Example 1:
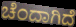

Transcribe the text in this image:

ಚೆಂದಾಗಿದೆ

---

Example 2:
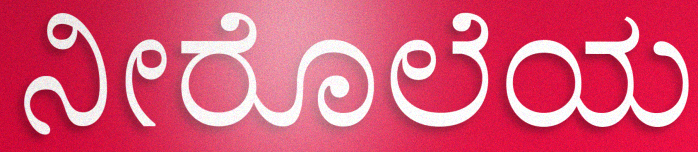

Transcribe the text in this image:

ನೀರೊಲೆಯ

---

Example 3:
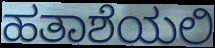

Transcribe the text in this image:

ಹತಾಶೆಯಲಿ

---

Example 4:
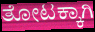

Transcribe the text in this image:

ತೋಟಕ್ಕಾಗಿ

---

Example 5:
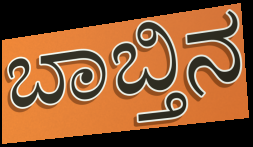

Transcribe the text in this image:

ಬಾಬ್ತಿನ